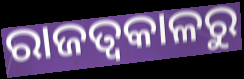
ରାଜତ୍ଵକାଳରୁ